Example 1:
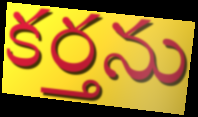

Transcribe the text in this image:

కర్తను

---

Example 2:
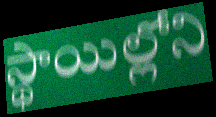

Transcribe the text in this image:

స్థాయిల్లోని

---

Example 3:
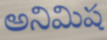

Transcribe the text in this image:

అనిమిష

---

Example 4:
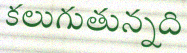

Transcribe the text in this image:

కలుగుతున్నది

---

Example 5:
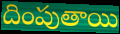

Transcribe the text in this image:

దింపుతాయి